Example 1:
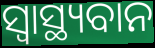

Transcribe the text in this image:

ସ୍ୱାସ୍ଥ୍ୟବାନ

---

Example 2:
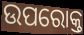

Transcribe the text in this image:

ଉପରୋକ୍ତ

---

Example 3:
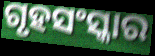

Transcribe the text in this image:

ଗୃହସଂସ୍କାର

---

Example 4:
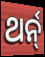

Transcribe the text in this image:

ଥର୍ନ୍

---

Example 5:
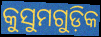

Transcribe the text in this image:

କୁସୁମଗୁଡ଼ିକ